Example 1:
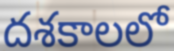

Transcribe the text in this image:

దశకాలలో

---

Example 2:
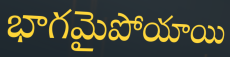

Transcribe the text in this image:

భాగమైపోయాయి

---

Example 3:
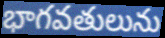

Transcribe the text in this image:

భాగవతులును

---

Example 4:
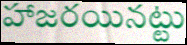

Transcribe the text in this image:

హాజరయినట్టు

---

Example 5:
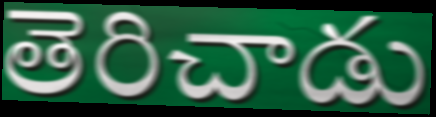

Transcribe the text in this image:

తెరిచాడు